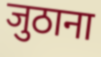
जुठाना